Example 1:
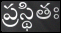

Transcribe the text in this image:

ప్రస్థితః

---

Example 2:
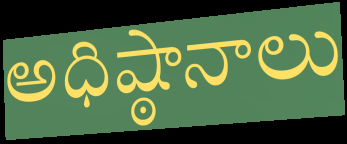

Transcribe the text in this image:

అధిష్ఠానాలు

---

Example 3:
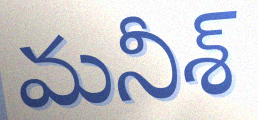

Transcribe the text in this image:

మనీశ్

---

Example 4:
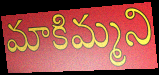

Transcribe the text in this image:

మాకిమ్మని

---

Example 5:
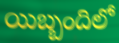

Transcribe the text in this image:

యిబ్బందిలో